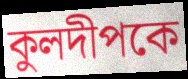
কুলদীপকে